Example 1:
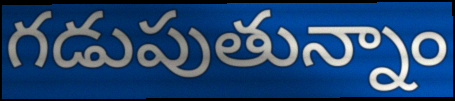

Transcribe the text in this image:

గడుపుతున్నాం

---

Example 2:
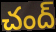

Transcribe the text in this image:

చంద్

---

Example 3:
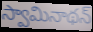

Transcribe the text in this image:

స్వామినాథన్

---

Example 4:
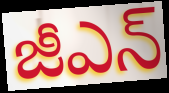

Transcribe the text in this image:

జీఎన్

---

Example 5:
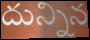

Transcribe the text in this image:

దున్నిన